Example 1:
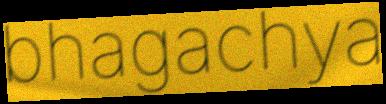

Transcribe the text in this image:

bhagachya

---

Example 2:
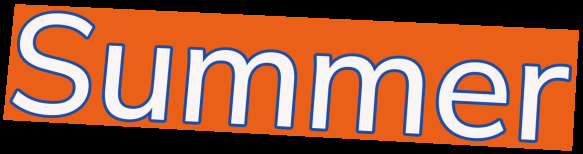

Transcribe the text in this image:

Summer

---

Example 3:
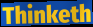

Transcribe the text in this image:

Thinketh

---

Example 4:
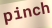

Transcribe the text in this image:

pinch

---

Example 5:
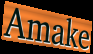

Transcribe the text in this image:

Amake